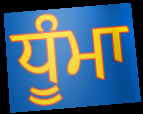
ਧੂੰਮਾ